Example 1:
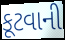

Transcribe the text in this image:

કૂટવાની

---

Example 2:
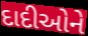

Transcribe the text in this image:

દાદીઓને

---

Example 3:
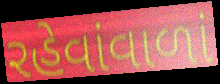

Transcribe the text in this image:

રહેવાંવાળાં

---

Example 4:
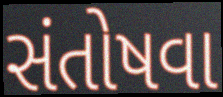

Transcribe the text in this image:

સંતોષવા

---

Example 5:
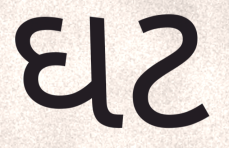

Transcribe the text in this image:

ઘટ